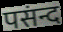
पसंन्द